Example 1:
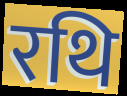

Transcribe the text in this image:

रथि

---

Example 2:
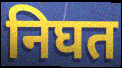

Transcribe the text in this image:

निघत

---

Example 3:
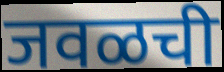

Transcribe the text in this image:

जवळची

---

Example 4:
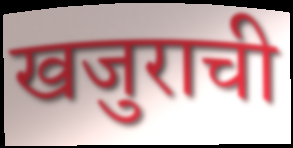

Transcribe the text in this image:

खजुराची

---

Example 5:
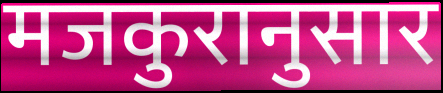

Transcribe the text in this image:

मजकुरानुसार